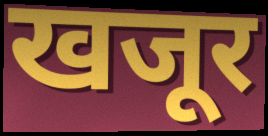
खजूर